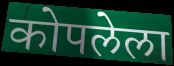
कोपलेला